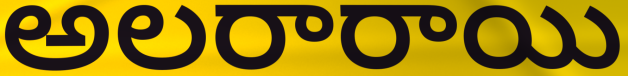
అలరారాయి